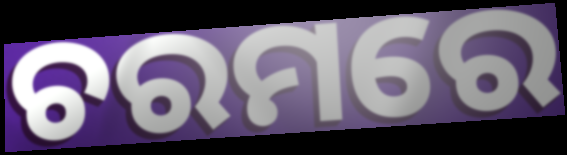
ଚରମରେ